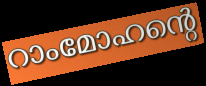
റാംമോഹന്റെ